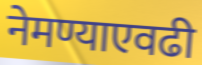
नेमण्याएवढी